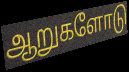
ஆறுகளோடு